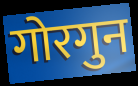
गोरगुन